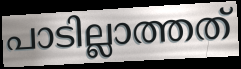
പാടില്ലാത്തത്